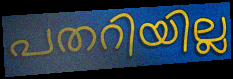
പതറിയില്ല